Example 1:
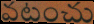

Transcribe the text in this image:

వటంచు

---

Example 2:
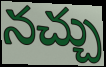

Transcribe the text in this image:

నచ్చు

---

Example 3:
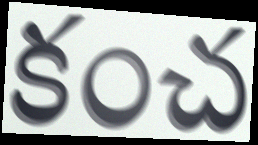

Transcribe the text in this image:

కంచ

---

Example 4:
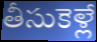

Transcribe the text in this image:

తీసుకెళ్లే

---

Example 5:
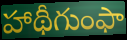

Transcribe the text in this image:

హాథీగుంఫా